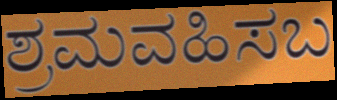
ಶ್ರಮವಹಿಸಬ